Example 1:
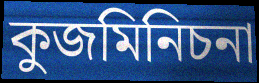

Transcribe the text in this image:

কুজমিনিচনা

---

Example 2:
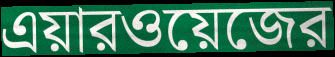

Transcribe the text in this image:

এয়ারওয়েজের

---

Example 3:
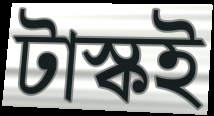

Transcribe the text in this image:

টাস্কই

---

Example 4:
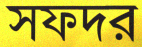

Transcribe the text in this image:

সফদর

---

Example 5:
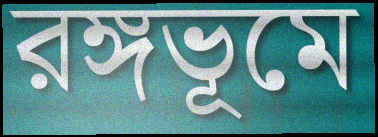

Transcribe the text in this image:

রঙ্গভূমে